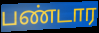
பண்டார